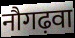
नौगढ़वा